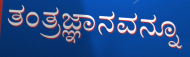
ತಂತ್ರಜ್ಞಾನವನ್ನೂ